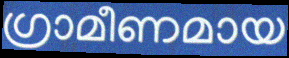
ഗ്രാമീണമായ